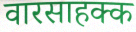
वारसाहक्क